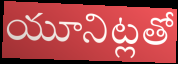
యూనిట్లతో